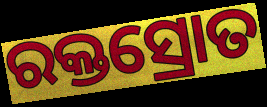
ରକ୍ତସ୍ରୋତ